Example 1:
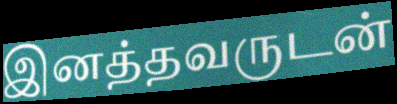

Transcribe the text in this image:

இனத்தவருடன்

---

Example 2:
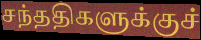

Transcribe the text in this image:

சந்ததிகளுக்குச்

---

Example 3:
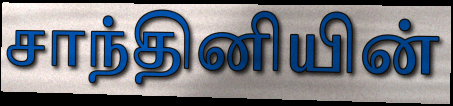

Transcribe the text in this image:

சாந்தினியின்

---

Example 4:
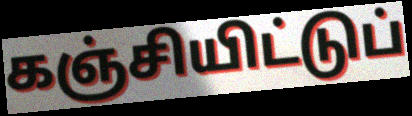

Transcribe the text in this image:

கஞ்சியிட்டுப்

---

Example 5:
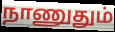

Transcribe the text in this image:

நாணுதும்